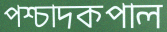
পশ্চাদকপাল